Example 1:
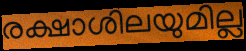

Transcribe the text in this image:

രക്ഷാശിലയുമില്ല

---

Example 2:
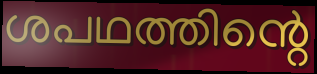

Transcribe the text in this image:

ശപഥത്തിന്റെ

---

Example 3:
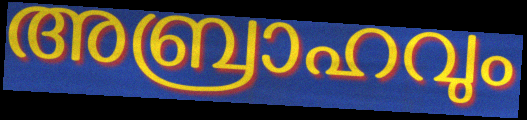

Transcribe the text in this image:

അബ്രാഹവും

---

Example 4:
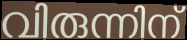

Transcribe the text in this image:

വിരുന്നിന്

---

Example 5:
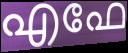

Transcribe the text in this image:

എഫേ